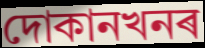
দোকানখনৰ